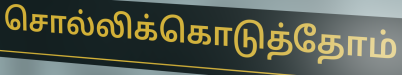
சொல்லிக்கொடுத்தோம்